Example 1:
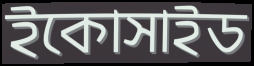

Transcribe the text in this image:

ইকোসাইড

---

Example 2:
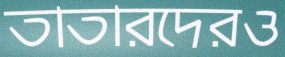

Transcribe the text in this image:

তাতারদেরও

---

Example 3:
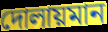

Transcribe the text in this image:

দোলায়মান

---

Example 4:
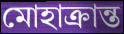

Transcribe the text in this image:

মোহাক্রান্ত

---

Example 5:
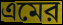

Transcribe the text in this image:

এমের